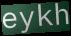
eykh